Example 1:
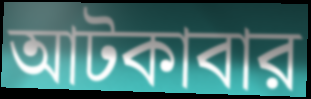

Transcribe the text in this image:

আটকাবার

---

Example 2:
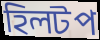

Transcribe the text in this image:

হিলটপ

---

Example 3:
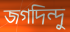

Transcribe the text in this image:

জগদিন্দু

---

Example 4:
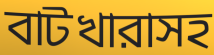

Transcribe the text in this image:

বাটখারাসহ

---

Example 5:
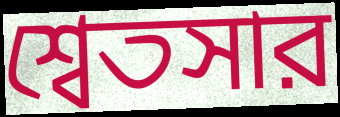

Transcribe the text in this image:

শ্বেতসার